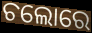
ଚଲୋରେ